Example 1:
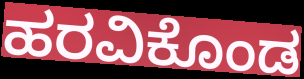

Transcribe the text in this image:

ಹರವಿಕೊಂಡ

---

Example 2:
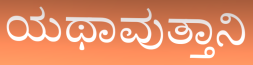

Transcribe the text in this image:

ಯಥಾವುತ್ತಾನಿ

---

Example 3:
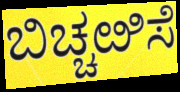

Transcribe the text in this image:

ಬಿಚ್ಚೞಿಸೆ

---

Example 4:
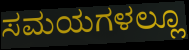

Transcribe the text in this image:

ಸಮಯಗಳಲ್ಲೂ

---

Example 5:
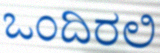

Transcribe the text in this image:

ಒಂದಿರಲಿ